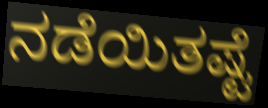
ನಡೆಯಿತಷ್ಟೆ